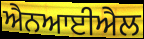
ਐਨਆਈਐਲ